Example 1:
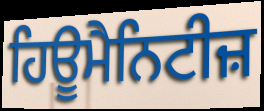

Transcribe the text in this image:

ਹਿਊਮੈਨਿਟੀਜ਼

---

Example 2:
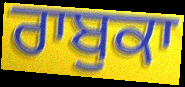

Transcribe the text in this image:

ਰਾਬੁਕਾ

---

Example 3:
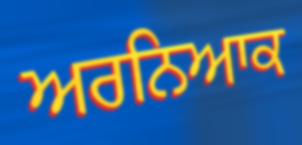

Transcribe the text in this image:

ਅਰਨਿਆਕ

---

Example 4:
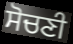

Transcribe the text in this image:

ਸੋਚਣੀ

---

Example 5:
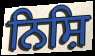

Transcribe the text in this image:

ਨਿਸ਼ਿ